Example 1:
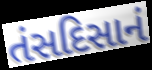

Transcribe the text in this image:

તંસદિસાનં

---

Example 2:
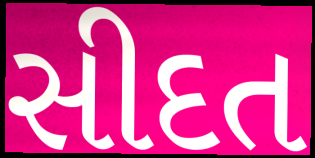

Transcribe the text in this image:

સીદત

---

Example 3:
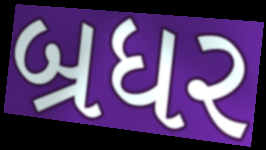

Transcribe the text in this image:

બ્રધર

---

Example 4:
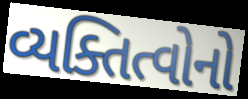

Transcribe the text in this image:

વ્યક્તિત્વોનો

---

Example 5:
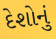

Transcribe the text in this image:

દેશોનું